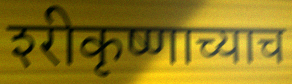
श्रीकृष्णाच्याच